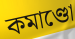
কমাণ্ডো